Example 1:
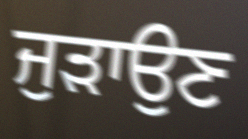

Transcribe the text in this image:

ਜੁੜਾਉਣ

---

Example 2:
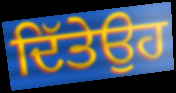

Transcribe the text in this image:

ਦਿੱਤੇਉਹ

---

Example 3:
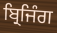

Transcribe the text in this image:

ਬ੍ਰਿਜਿੰਗ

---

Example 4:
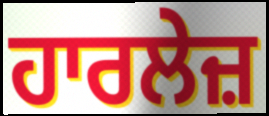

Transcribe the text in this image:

ਹਾਰਲੇਜ਼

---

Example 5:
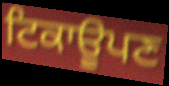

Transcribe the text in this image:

ਟਿਕਾਊਪਣ